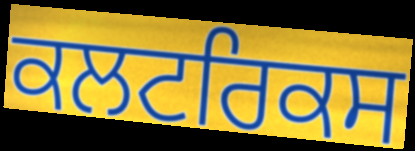
ਕਲਟਰਿਕਸ